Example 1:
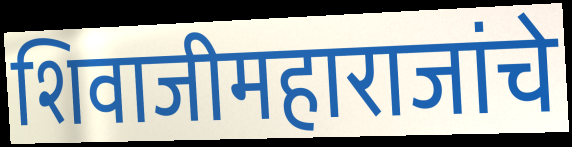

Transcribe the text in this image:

शिवाजीमहाराजांचे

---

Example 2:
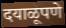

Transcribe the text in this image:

दयाळूपणे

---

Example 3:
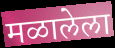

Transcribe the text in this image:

मळालेला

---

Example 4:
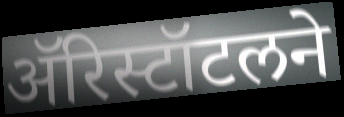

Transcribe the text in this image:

ॲरिस्टॉटलने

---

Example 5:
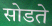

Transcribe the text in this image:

सोडते